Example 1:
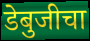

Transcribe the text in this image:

डेबुजीचा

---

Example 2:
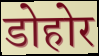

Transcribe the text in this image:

डोहोर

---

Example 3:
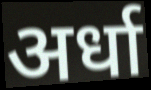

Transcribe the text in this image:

अर्धा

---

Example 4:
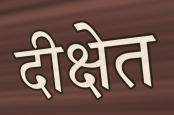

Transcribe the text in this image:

दीक्षेत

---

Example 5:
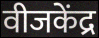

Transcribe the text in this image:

वीजकेंद्र